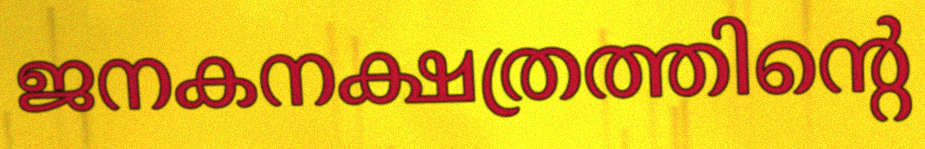
ജനകനക്ഷത്രത്തിന്റെ